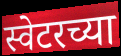
स्वेटरच्या